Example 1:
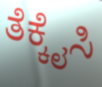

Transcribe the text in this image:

ತೆಕ್ಕೈಸಿ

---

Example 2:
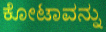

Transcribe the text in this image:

ಕೋಟಾವನ್ನು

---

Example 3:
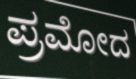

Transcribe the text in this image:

ಪ್ರಮೋದ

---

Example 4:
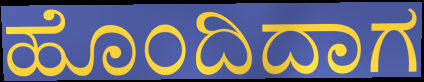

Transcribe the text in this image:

ಹೊಂದಿದಾಗ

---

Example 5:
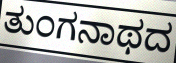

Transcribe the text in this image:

ತುಂಗನಾಥದ